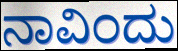
ನಾವಿಂದು